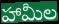
హామీల